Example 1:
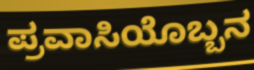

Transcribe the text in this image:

ಪ್ರವಾಸಿಯೊಬ್ಬನ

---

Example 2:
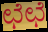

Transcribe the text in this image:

ಛೆಛೆ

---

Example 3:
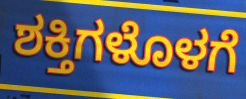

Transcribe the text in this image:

ಶಕ್ತಿಗಳೊಳಗೆ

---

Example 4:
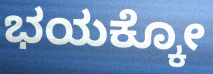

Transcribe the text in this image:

ಭಯಕ್ಕೋ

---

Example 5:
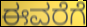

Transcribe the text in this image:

ಈವರೆಗೆ